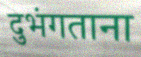
दुभंगताना